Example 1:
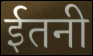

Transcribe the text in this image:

ईतनी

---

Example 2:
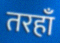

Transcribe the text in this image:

तरहाँ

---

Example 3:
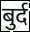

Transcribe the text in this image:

बुर्द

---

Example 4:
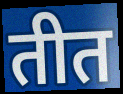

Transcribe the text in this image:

तीत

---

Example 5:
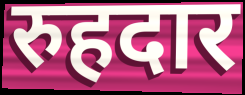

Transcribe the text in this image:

रुहदार